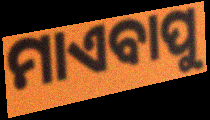
ମାଏବାପୁ